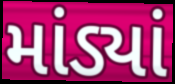
માંડ્યાં